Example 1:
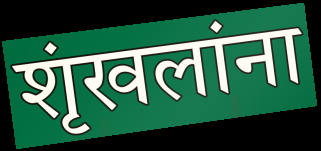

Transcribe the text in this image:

शृंखलांना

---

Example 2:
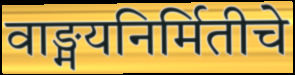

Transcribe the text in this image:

वाङ्मयनिर्मितीचे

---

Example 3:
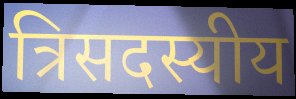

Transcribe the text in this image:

त्रिसदस्यीय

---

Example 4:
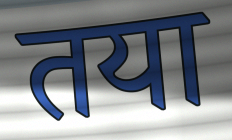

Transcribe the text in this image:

तया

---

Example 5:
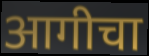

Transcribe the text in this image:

आगीचा